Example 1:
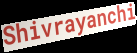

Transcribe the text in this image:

Shivrayanchi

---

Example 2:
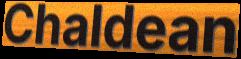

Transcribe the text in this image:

Chaldean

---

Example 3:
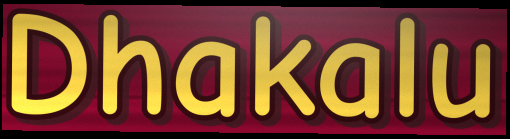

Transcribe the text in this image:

Dhakalu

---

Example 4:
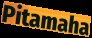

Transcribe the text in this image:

Pitamaha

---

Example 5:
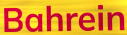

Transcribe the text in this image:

Bahrein